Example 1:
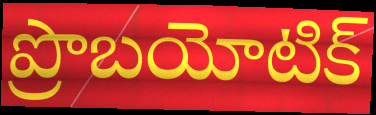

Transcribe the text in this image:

ప్రొబయోటిక్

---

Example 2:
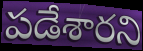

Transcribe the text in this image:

పడేశారని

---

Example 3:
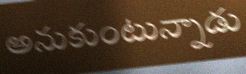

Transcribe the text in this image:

అనుకుంటున్నాడు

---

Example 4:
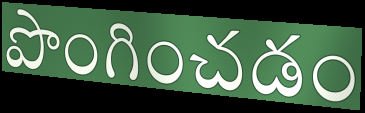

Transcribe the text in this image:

పొంగించడం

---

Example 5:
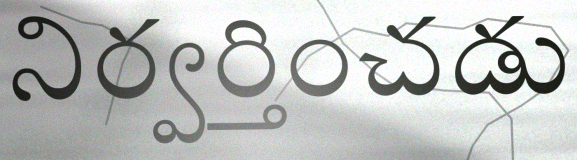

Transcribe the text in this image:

నిర్వర్తించడు